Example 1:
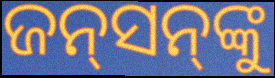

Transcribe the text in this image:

ଜନ୍‍ସନ୍‍ଙ୍କୁ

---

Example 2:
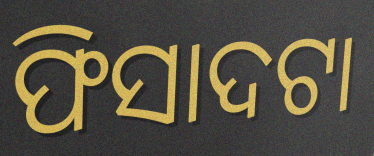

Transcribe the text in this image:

ଫିସାଦଟା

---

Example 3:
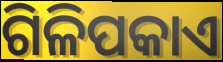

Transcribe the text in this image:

ଗିଳିପକାଏ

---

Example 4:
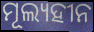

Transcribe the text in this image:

ମୂଲ୍ୟହୀନ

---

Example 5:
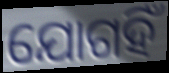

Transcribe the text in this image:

ଯୋଗହିଁ